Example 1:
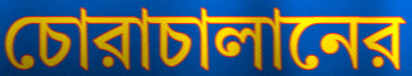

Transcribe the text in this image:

চোরাচালানের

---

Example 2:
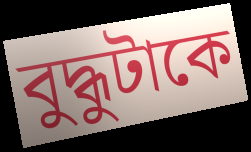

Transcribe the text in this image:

বুদ্ধুটাকে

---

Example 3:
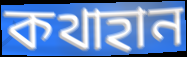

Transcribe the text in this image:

কথাহান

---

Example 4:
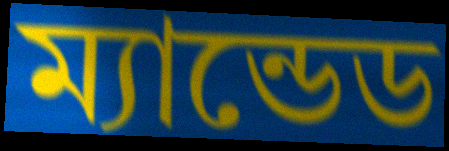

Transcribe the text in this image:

ম্যান্ডেড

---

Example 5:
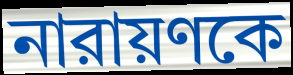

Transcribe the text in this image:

নারায়ণকে